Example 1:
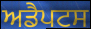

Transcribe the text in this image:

ਅਡੈਪਟਸ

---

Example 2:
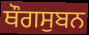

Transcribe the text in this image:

ਥੌਗਸੁਬਨ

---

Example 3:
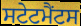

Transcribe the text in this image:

ਸਟੇਟਮੈਂਟਸ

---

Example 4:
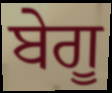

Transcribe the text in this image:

ਬੇਗੂ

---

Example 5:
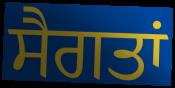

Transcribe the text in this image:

ਸੈਗਤਾਂ